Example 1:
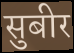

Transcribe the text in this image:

सुबीर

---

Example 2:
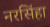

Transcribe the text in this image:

नरसिंहा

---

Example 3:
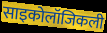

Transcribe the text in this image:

साइकोलॉजिकली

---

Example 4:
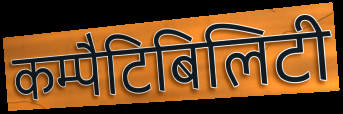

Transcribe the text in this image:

कम्पैटिबिलिटी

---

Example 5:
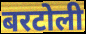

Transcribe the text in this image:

बरटोली